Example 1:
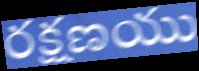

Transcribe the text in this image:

రక్షణయు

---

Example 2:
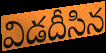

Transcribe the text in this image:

విడదీసిన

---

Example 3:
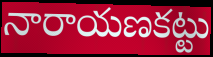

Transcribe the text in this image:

నారాయణకట్టు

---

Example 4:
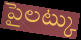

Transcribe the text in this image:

పైలట్కు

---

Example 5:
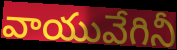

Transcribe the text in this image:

వాయువేగినీ